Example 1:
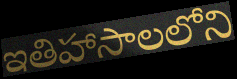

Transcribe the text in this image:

ఇతిహాసాలలోని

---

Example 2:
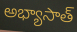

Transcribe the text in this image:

అభ్యాసాత్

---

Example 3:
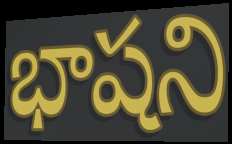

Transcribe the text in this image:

భాషని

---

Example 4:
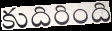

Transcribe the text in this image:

కుదిరింది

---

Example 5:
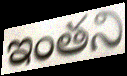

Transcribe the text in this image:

ఇంతని